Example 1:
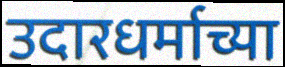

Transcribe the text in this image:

उदारधर्माच्या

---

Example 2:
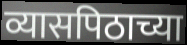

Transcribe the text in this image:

व्यासपिठाच्या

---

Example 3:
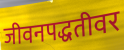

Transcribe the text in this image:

जीवनपद्धतीवर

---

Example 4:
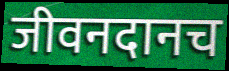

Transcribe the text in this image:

जीवनदानच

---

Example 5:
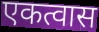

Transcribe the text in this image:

एकत्वास